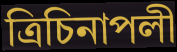
ত্রিচিনাপলী